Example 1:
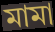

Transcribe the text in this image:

মামা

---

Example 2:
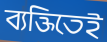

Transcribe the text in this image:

ব্যক্তিতেই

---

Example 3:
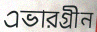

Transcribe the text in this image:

এভারগ্রীন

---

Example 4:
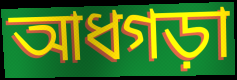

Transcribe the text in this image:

আধগড়া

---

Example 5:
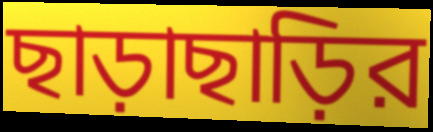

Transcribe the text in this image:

ছাড়াছাড়ির